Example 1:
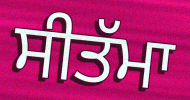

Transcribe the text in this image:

ਸੀਤੱਮਾ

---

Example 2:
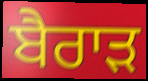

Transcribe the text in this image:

ਬੈਰਾੜ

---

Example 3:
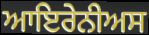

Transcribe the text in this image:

ਆਇਰੇਨੀਅਸ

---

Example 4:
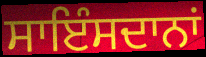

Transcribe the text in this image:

ਸਾਇੰਸਦਾਨਾਂ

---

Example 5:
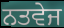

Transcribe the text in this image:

ਨਤਵੇਜ